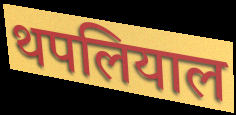
थपलियाल